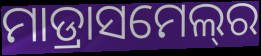
ମାଡ୍ରାସମେଲ୍‍ର